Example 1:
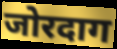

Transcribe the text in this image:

जोरदाग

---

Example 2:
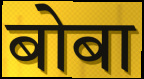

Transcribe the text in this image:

बोबा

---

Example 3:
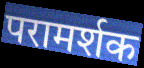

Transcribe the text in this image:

परामर्शक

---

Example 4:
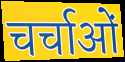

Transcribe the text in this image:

चर्चाओं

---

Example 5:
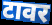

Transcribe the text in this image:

टावर